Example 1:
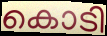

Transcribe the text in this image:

കൊടി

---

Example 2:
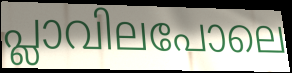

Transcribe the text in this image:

പ്ലാവിലപോലെ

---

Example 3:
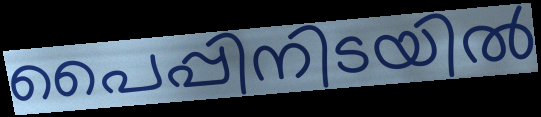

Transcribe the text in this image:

പൈപ്പിനിടയിൽ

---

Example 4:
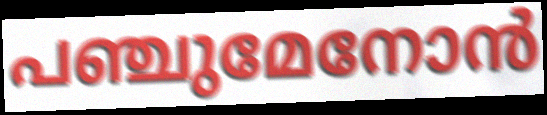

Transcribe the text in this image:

പഞ്ചുമേനോൻ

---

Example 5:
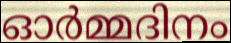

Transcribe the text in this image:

ഓർമ്മദിനം